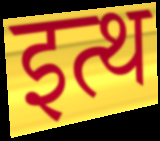
इत्थ